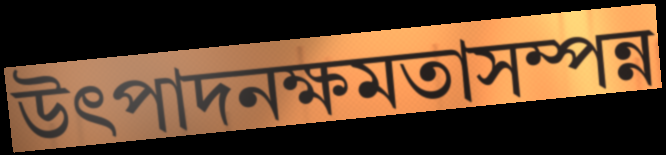
উৎপাদনক্ষমতাসম্পন্ন